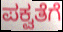
ಪಕ್ವತೆಗೆ